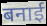
बनाई